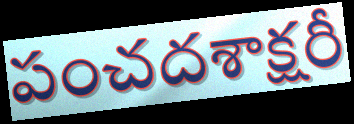
పంచదశాక్షరీ